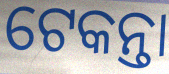
ଟେକନ୍ତା